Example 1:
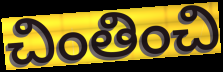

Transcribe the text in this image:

చింతించి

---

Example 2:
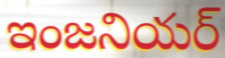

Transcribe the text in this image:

ఇంజనియర్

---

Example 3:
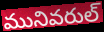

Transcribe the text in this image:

మునివరుల్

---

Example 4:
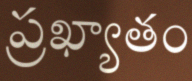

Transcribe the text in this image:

ప్రఖ్యాతం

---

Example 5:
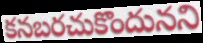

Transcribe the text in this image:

కనబరచుకొందునని